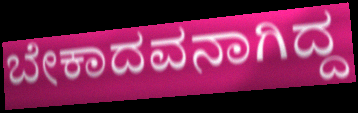
ಬೇಕಾದವನಾಗಿದ್ದ